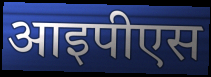
आइपीएस